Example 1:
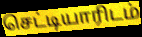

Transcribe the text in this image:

செட்டியாரிடம்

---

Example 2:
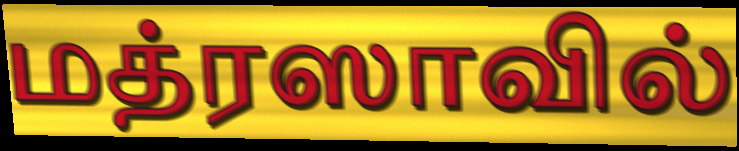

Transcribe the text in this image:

மத்ரஸாவில்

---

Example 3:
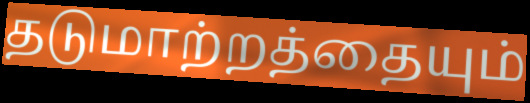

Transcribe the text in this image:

தடுமாற்றத்தையும்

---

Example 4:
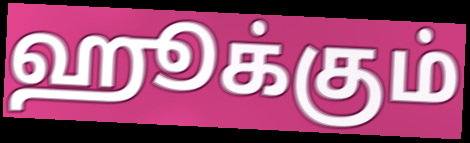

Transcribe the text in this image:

ஹூக்கும்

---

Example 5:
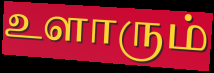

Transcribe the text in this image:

உளாரும்